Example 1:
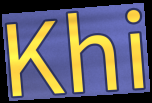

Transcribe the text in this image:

Khi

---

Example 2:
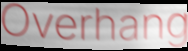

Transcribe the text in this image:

Overhang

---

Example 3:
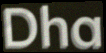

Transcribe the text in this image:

Dha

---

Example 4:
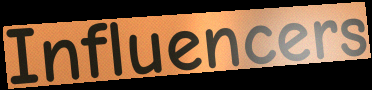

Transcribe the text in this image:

Influencers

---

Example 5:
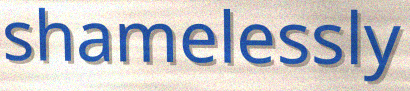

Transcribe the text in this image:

shamelessly